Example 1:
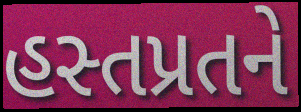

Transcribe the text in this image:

હસ્તપ્રતને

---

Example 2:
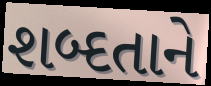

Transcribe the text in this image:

શબ્દતાને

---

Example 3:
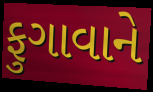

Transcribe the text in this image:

ફુગાવાને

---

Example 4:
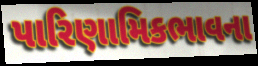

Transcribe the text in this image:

પારિણામિકભાવના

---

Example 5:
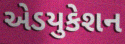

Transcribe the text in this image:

એડયુકેશન